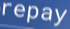
repay